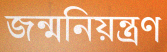
জন্মনিয়ন্ত্রণ